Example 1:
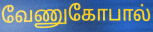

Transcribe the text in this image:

வேணுகோபால்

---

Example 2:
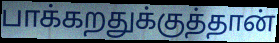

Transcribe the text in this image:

பாக்கறதுக்குத்தான்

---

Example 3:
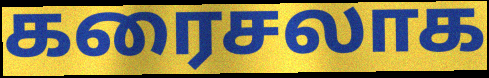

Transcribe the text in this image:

கரைசலாக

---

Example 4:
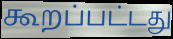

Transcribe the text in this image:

கூறப்பட்டது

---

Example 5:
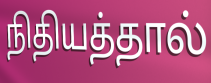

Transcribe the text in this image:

நிதியத்தால்